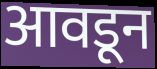
आवडून